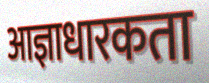
आज्ञाधारकता